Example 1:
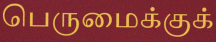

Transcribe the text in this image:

பெருமைக்குக்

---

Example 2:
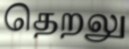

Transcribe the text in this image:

தெறலு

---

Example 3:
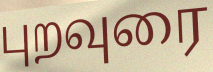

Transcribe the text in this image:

புறவுரை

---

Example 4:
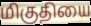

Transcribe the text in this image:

மிகுதியை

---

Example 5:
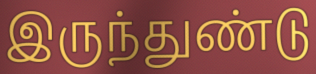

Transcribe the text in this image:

இருந்துண்டு